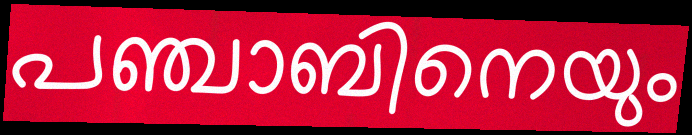
പഞ്ചാബിനെയും